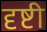
दृष्टी